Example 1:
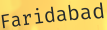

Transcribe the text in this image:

Faridabad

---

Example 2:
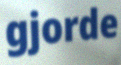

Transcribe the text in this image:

gjorde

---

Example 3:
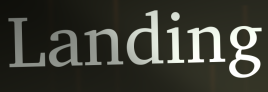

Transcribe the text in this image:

Landing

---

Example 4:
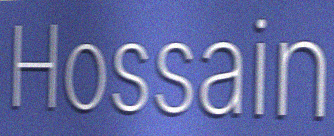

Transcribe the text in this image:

Hossain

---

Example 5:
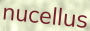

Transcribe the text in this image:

nucellus